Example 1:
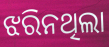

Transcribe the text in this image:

ଝରିନଥିଲା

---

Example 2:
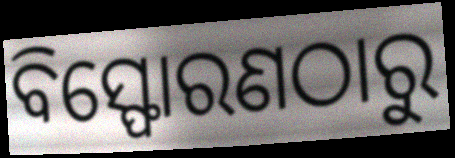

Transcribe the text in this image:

ବିସ୍ଫୋରଣଠାରୁ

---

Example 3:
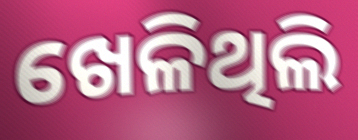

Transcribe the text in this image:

ଖେଳିଥିଲି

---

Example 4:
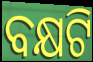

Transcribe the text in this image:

ବକ୍ଷଟି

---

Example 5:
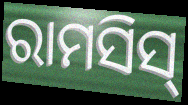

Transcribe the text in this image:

ରାମସିସ୍